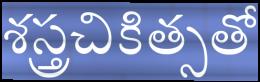
శస్త్రచికిత్సతో